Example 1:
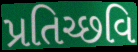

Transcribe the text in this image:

પ્રતિચ્છવિ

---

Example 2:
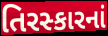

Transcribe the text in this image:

તિરસ્કારનાં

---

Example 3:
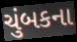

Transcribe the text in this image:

ચુંબકના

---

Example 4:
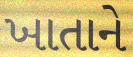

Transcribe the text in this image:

ખાતાને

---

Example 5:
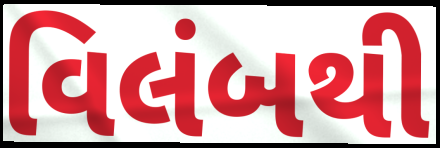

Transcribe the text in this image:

વિલંબથી